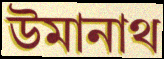
উমানাথ